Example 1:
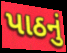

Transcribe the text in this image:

પાઠનું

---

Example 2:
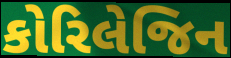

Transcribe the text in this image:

કોરિલેજિન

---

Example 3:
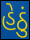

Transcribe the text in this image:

હેઠું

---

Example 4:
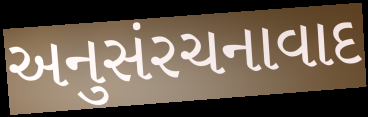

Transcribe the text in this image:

અનુસંરચનાવાદ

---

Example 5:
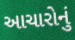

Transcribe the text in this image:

આચારોનું